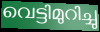
വെട്ടിമുറിച്ചു